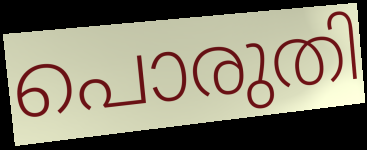
പൊരുതി